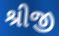
શ્રીજી